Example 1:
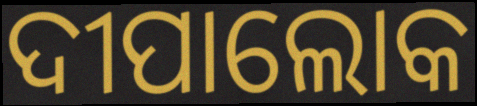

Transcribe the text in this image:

ଦୀପାଲୋକ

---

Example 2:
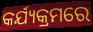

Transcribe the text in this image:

କର୍ଯ୍ୟକ୍ରମରେ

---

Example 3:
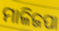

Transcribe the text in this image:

ମାଳିଜପା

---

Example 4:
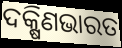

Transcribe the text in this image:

ଦକ୍ଷିଣଭାରତ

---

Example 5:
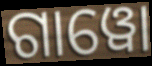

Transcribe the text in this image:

ଗାୱୋ